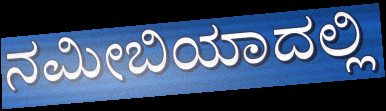
ನಮೀಬಿಯಾದಲ್ಲಿ